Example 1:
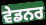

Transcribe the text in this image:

ਵੇਡਨਰ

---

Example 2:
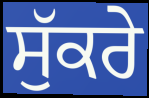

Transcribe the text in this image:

ਸੁੱਕਰੇ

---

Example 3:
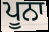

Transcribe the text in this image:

ਪੂਨਾ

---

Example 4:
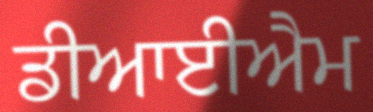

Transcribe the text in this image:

ਡੀਆਈਐਮ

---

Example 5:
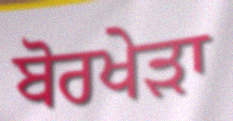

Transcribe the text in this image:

ਬੋਰਖੇੜਾ